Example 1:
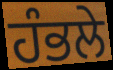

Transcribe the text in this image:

ਹੰਭਲੇ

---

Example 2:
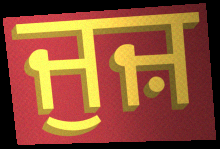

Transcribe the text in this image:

ਜੁਜ਼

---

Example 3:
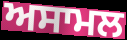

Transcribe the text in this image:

ਅਸਾਮਲ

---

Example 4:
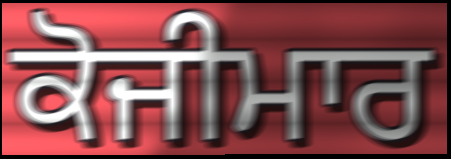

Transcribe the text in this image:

ਕੋਜੀਮਾਰ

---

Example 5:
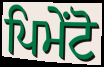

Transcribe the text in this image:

ਪਿਮੇਂਟੋ